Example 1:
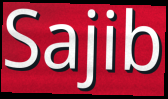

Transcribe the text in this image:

Sajib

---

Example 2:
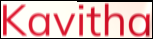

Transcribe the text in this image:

Kavitha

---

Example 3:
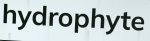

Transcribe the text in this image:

hydrophyte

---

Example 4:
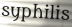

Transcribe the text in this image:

syphilis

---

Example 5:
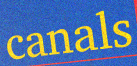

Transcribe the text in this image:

canals